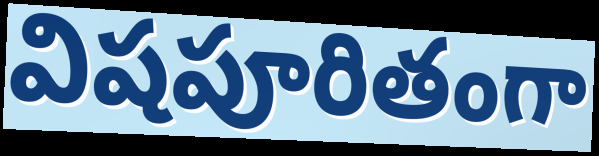
విషపూరితంగా